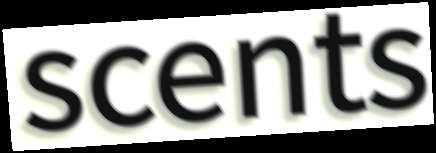
scents